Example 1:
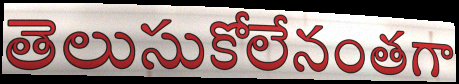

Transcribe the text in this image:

తెలుసుకోలేనంతగా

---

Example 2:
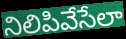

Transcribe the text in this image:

నిలిపివేసేలా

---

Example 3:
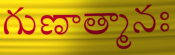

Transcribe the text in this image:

గుణాత్మానః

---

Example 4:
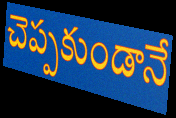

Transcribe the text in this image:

చెప్పకుండానే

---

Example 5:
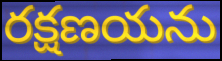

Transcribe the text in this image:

రక్షణయను